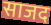
साजद